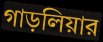
গাড়লিয়ার